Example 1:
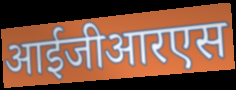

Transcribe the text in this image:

आईजीआरएस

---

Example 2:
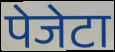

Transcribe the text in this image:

पेजेटा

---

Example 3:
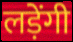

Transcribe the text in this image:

लड़ेंगी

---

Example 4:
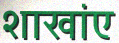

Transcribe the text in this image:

शाखांए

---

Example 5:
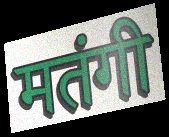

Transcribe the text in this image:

मतंगी